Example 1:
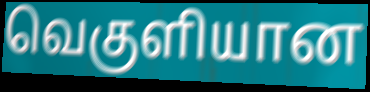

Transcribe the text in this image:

வெகுளியான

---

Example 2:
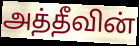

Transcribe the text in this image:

அத்தீவின்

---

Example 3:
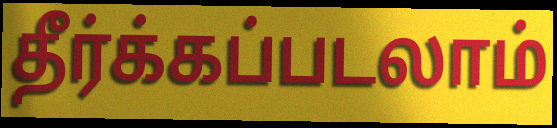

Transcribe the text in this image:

தீர்க்கப்படலாம்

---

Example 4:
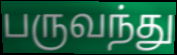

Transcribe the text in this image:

பருவந்து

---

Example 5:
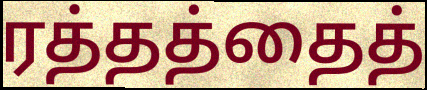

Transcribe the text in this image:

ரத்தத்தைத்